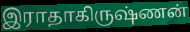
இராதாகிருஷ்ணன்